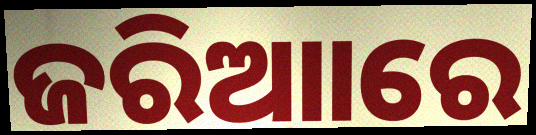
ଜରିଆାରେ